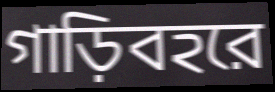
গাড়িবহরে